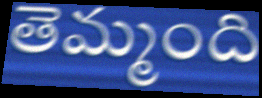
తెమ్మంది